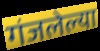
गंजलेल्या